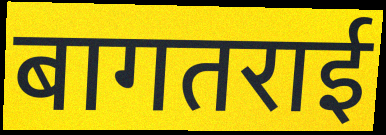
बागतराई